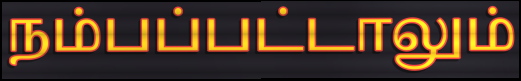
நம்பப்பட்டாலும்